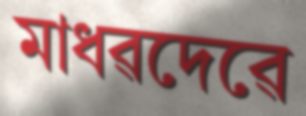
মাধৱদেৱে